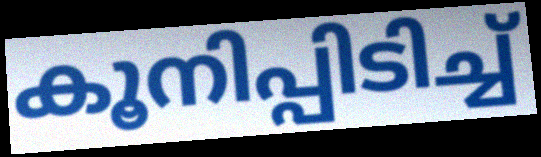
കൂനിപ്പിടിച്ച്